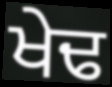
ਖੇਢ